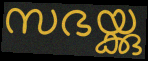
സഭയ്ക്കു